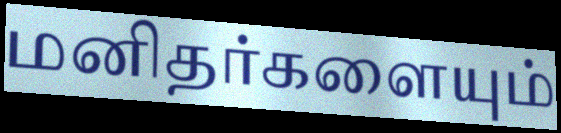
மனிதர்களையும்